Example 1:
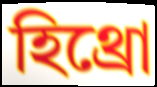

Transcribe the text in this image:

হিথ্রো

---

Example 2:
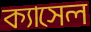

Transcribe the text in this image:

ক্যাসেল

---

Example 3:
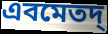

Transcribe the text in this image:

এবমেতদ্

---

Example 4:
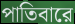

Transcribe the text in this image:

পাতিবারে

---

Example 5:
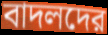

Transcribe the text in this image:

বাদলদের